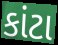
કાંટા